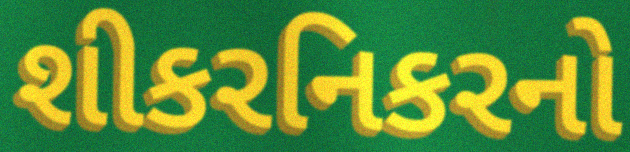
શીકરનિકરનો